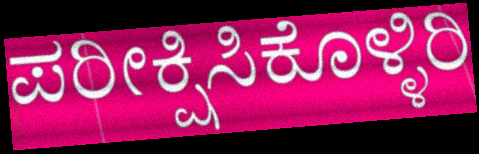
ಪರೀಕ್ಷಿಸಿಕೊಳ್ಳಿರಿ